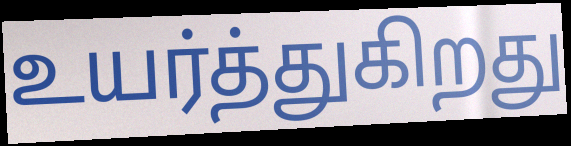
உயர்த்துகிறது